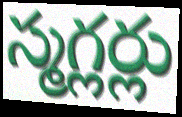
స్మగ్లర్లు